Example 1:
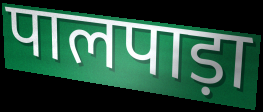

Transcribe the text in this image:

पालपाड़ा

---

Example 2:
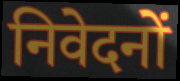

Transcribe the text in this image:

निवेदनों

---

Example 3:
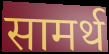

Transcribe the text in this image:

सामर्थ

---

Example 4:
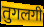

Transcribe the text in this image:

तुगलगी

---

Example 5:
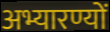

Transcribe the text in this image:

अभ्यारण्यों